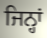
ਜਿਨ੍ਹਾਂ